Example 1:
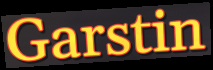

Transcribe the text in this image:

Garstin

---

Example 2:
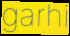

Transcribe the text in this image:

garhi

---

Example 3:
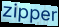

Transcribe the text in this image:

zipper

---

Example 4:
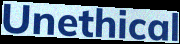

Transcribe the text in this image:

Unethical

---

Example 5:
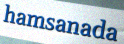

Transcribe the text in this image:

hamsanada